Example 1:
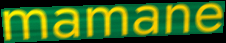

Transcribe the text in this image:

mamane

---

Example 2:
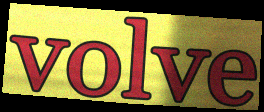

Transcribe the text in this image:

volve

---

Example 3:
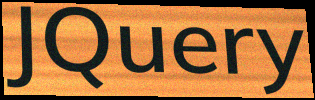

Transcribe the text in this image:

JQuery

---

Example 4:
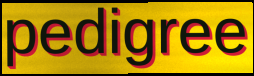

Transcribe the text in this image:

pedigree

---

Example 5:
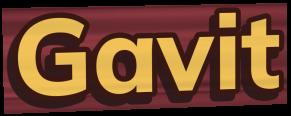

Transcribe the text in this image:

Gavit